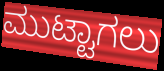
ಮುಟ್ಟಾಗಲು